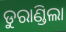
ଡୁରାଣ୍ଡିଲା